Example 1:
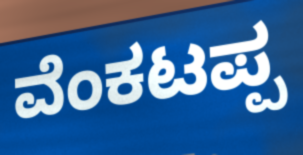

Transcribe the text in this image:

ವೆಂಕಟಪ್ಪ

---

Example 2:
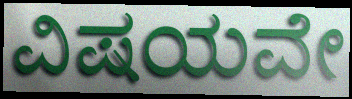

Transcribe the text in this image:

ವಿಷಯವೇ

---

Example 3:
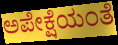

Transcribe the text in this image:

ಅಪೇಕ್ಷೆಯಂತೆ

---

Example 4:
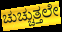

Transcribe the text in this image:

ಚುಚ್ಚುತ್ತಲೇ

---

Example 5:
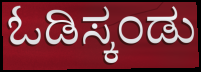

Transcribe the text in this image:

ಓಡಿಸ್ಕಂಡು